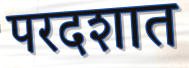
परदशात